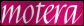
motera